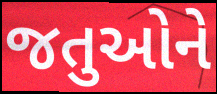
જતુઓને